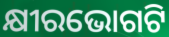
କ୍ଷୀରଭୋଗଟି